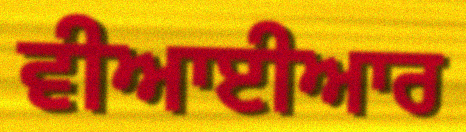
ਵੀਆਈਆਰ